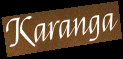
Karanga